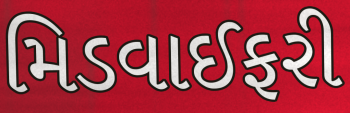
મિડવાઈફરી